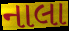
નાલા